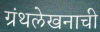
ग्रंथलेखनाची